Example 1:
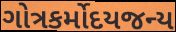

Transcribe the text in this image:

ગોત્રકર્મોદયજન્ય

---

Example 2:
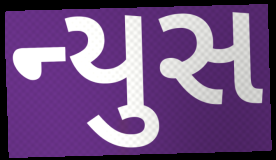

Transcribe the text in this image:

ન્યુસ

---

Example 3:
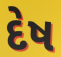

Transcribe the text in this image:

દેષ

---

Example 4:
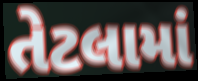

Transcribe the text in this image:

તેટલામાં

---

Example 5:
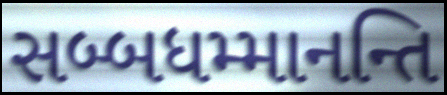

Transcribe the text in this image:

સબ્બધમ્માનન્તિ